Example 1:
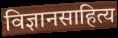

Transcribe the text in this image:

विज्ञानसाहित्य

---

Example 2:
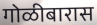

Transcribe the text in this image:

गोळीबारास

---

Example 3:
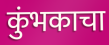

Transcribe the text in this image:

कुंभकाचा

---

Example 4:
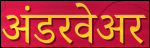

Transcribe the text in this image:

अंडरवेअर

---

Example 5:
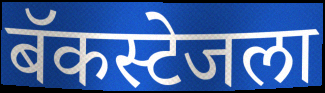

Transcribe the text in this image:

बॅकस्टेजला